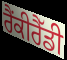
ਰੈਂਕੀਰੈੱਡੀ